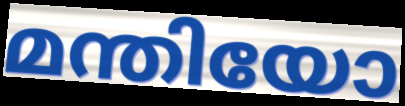
മന്തിയോ